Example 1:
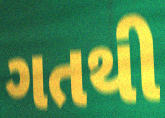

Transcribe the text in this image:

ગતથી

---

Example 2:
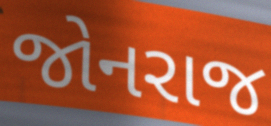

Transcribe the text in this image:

જોનરાજ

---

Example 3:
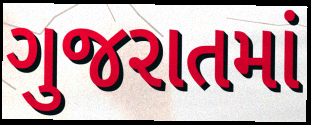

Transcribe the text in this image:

ગુજરાતમાં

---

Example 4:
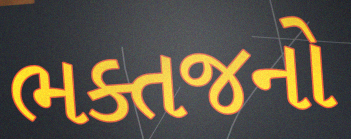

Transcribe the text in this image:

ભક્તજનો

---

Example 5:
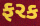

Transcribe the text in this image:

ફરક